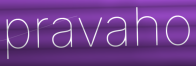
pravaho